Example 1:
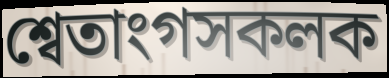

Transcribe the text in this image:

শ্বেতাংগসকলক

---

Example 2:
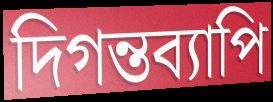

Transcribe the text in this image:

দিগন্তব্যাপি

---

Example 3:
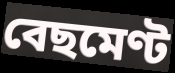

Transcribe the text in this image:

বেছমেণ্ট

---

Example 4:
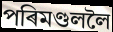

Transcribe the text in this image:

পৰিমণ্ডললৈ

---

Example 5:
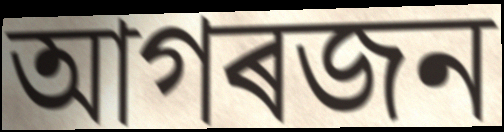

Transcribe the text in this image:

আগৰজন